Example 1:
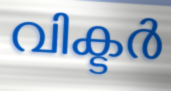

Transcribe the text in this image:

വിക്ടർ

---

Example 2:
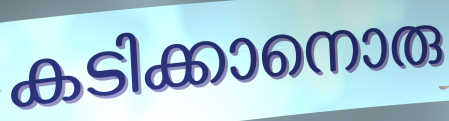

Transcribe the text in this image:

കടിക്കാനൊരു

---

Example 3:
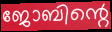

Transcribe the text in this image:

ജോബിന്റെ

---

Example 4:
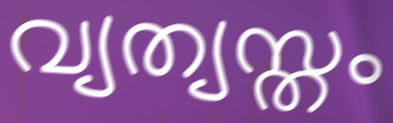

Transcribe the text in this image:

വ്യത്യസ്തം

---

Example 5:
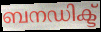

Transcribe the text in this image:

ബനഡിക്ട്